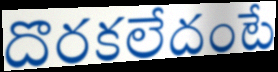
దొరకలేదంటే